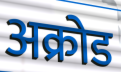
अक्रोड